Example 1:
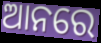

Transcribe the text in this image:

ଆନରେ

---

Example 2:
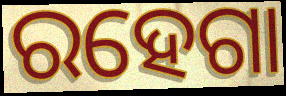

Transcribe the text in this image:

ରହେଗା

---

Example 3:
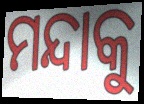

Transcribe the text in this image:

ମନ୍ଦାକୁ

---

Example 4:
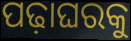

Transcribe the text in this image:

ପଢ଼ାଘରକୁ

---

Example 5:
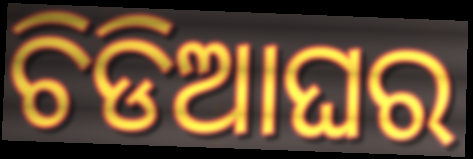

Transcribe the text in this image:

ଚିଡିଆଘର